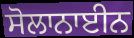
ਸੋਲਾਨਾਈਨ